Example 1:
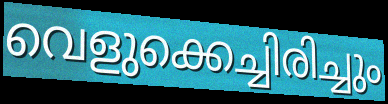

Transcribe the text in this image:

വെളുക്കെച്ചിരിച്ചും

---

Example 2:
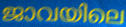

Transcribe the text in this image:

ജാവയിലെ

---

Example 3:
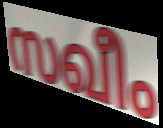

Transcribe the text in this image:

സഖീം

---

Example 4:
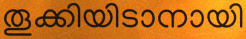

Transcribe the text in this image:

തൂക്കിയിടാനായി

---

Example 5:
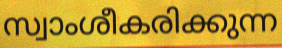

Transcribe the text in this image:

സ്വാംശീകരിക്കുന്ന